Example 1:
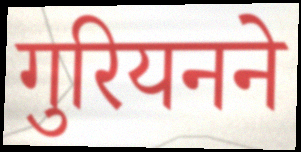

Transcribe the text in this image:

गुरियनने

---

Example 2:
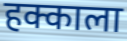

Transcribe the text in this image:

हक्काला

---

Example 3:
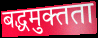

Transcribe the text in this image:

बद्धमुक्तता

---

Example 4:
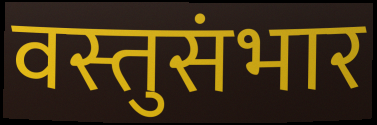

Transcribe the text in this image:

वस्तुसंभार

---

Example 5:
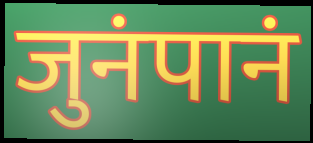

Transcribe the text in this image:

जुनंपानं